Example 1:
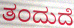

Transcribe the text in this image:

ತಂದುದೆ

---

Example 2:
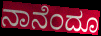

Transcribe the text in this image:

ನಾನೆಂದೂ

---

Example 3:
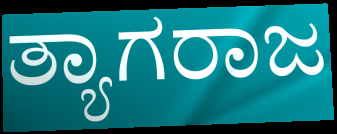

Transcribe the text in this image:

ತ್ಯಾಗರಾಜ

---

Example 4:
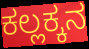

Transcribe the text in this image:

ಕಲ್ಲಕ್ಕನ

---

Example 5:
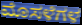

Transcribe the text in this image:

ಮೊಸಳೆಗಳ